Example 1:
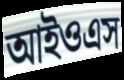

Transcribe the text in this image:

আইওএস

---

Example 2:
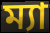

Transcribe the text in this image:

ম্যা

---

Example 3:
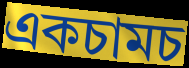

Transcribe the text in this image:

একচামচ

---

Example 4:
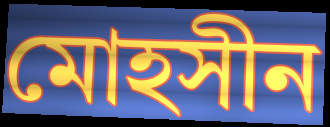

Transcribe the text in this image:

মোহসীন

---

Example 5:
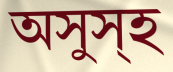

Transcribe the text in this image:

অসুস্হ